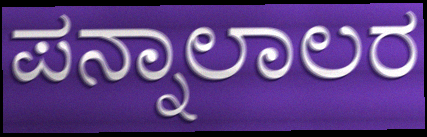
ಪನ್ನಾಲಾಲರ